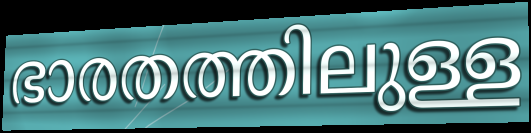
ഭാരതത്തിലുള്ള